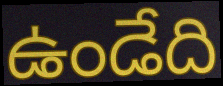
ఉండేది